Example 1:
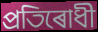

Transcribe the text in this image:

প্ৰতিৰোধী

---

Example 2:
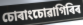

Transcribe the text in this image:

চোৰাংচোৱাগিৰিৰ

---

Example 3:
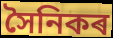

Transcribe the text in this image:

সৈনিকৰ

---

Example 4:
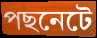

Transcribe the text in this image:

পছনেটে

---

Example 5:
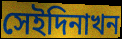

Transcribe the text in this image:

সেইদিনাখন